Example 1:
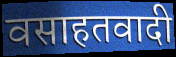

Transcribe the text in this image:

वसाहतवादी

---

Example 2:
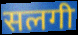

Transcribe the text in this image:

सलगी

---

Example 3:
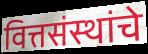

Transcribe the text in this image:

वित्तसंस्थांचे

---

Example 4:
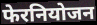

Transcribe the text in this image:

फेरनियोजन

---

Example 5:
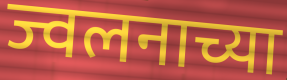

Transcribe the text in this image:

ज्वलनाच्या